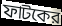
ফাটকের